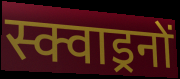
स्क्वाड्रनों